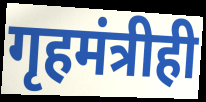
गृहमंत्रीही